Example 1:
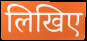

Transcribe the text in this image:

लिखिए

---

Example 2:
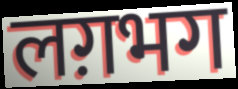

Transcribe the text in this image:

लग़भग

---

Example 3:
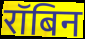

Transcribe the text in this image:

रॉबिन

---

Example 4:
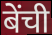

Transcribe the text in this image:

बेंची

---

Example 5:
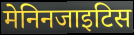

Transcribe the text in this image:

मेनिनजाइटिस